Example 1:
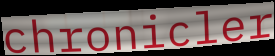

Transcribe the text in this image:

chronicler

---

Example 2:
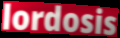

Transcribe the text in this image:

lordosis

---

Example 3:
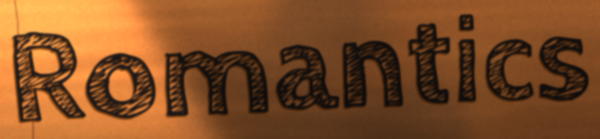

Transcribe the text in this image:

Romantics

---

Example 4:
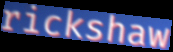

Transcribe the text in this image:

rickshaw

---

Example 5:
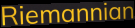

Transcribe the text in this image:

Riemannian